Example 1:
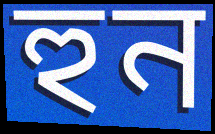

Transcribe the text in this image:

হুন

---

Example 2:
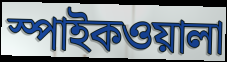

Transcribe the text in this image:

স্পাইকওয়ালা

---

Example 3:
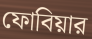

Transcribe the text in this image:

ফোবিয়ার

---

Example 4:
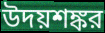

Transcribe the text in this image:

উদয়শঙ্কর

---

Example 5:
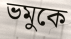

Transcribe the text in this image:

ভমুকে